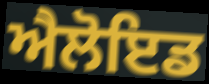
ਐਲੋਇਡ